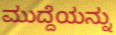
ಮುದ್ದೆಯನ್ನು